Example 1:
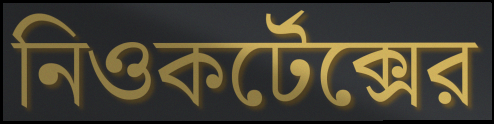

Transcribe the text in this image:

নিওকর্টেক্সের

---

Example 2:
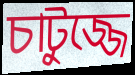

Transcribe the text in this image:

চাটুজ্জে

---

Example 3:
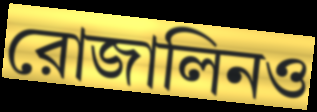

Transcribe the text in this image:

রোজালিনও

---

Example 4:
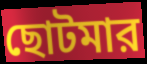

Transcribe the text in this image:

ছোটমার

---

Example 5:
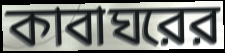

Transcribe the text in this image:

কাবাঘরের